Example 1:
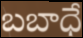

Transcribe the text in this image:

బబాధే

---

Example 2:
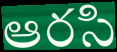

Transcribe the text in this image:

ఆరసి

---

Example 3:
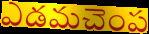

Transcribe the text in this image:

ఎడమచెంప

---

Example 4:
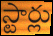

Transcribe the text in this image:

స్టార్లు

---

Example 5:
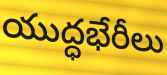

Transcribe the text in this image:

యుద్ధభేరీలు